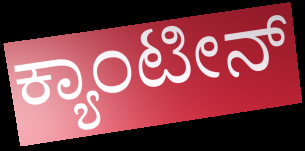
ಕ್ಯಾಂಟೀನ್